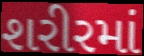
શરીરમાં